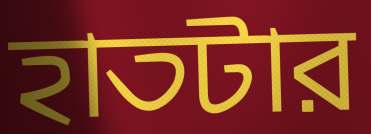
হাতটার